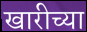
खारीच्या